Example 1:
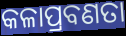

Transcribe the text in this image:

କଳାପ୍ରବଣତା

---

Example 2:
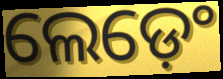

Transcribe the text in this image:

ଲେଡ଼େଂ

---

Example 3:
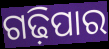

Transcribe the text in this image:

ଗଢ଼ିପାର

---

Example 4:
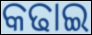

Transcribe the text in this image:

କଢାଇ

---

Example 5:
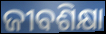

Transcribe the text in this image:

ଜୀବଶିକ୍ଷା